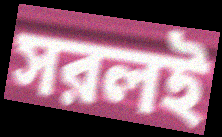
সরলই